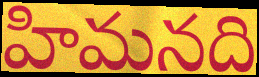
హిమనది